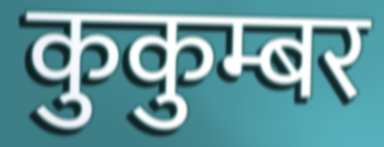
कुकुम्बर